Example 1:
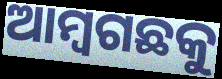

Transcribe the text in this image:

ଆମ୍ବଗଛକୁ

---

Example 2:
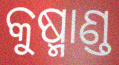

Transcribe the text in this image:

କୁଷ୍ମାଣ୍ଡ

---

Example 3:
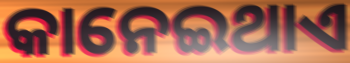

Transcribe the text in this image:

କାନେଇଥାଏ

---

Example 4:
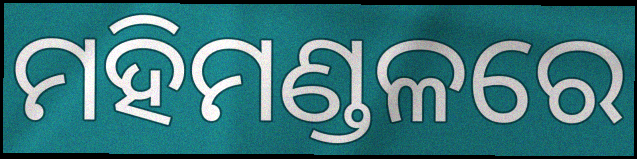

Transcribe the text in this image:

ମହିମଣ୍ଡଳରେ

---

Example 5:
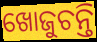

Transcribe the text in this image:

ଖୋଜୁଚନ୍ତି